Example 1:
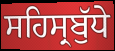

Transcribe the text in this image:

ਸਹਿਸ੍ਰਬੁੱਧੇ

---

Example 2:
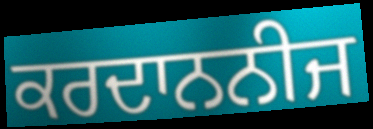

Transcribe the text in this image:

ਕਰਦਾਨਨੀਜ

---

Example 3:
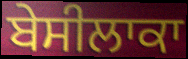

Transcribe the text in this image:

ਬੇਸੀਲਾਕਾ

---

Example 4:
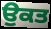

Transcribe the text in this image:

ਉੁਕਤ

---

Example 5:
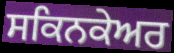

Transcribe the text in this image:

ਸਕਿਨਕੇਅਰ